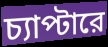
চ্যাপ্টারে